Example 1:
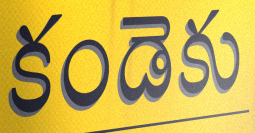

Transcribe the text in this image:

కండెకు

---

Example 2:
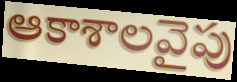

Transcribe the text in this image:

ఆకాశాలవైపు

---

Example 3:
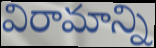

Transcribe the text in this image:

విరామాన్ని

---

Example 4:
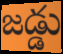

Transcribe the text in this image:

జడ్డు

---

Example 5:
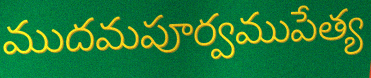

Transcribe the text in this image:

ముదమపూర్వముపేత్య